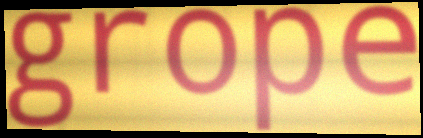
grope